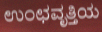
ಉಂಛವೃತ್ತಿಯ